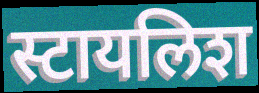
स्टायलिश